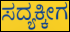
ಸದ್ಯಕ್ಕೀಗ